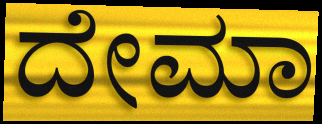
ದೇಮಾ